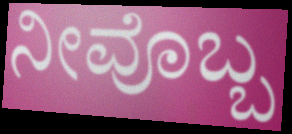
ನೀವೊಬ್ಬ